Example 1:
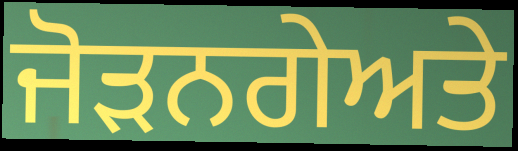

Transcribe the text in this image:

ਜੋੜਨਗੇਅਤੇ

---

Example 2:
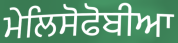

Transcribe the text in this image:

ਮੇਲਿਸੋਫੋਬੀਆ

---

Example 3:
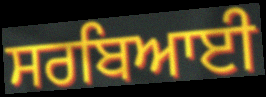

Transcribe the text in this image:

ਸਰਬਿਆਈ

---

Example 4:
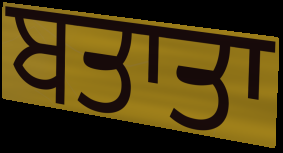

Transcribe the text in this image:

ਬਤਾਤਾ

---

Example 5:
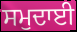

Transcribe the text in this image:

ਸਮੁਦਾਈ